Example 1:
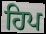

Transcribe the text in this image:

ਹਿਪ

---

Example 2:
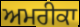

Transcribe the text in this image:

ਅਮਰੀਕਾ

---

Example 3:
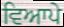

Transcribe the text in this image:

ਵਿਆਪੇ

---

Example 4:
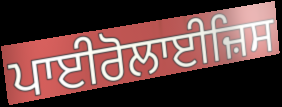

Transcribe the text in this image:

ਪਾਈਰੋਲਾਈਜ਼ਿਸ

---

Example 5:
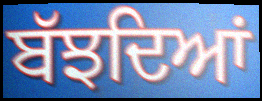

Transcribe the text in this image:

ਬੱਝਦਿਆਂ